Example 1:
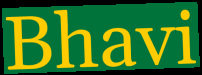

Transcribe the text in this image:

Bhavi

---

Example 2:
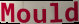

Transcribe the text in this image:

Mould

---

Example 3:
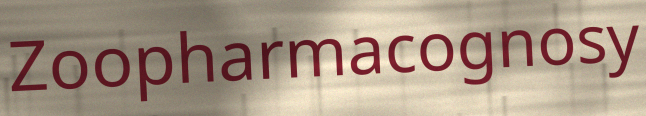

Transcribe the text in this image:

Zoopharmacognosy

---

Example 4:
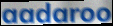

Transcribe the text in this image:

aadaroo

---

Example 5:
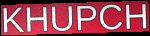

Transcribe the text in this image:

KHUPCH